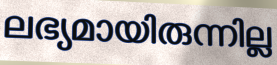
ലഭ്യമായിരുന്നില്ല